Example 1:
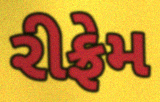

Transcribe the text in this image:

રીફ્રેમ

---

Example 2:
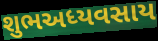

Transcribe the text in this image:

શુભઅધ્યવસાય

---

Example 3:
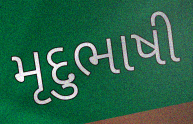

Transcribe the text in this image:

મૃદુભાષી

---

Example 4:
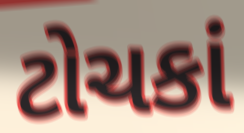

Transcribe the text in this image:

ટોચકાં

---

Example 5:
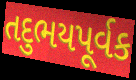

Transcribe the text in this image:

તદુભયપૂર્વક